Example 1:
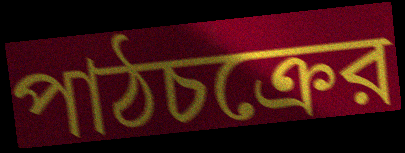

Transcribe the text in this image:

পাঠচক্রের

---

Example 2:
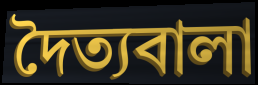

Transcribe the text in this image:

দৈত্যবালা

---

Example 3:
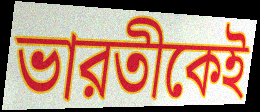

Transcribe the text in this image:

ভারতীকেই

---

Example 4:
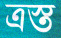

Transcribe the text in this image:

ত্রস্ত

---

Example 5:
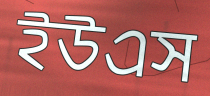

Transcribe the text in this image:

ইউএস